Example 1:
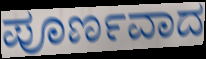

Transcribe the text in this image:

ಪೂರ್ಣವಾದ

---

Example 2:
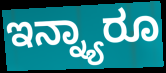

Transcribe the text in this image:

ಇನ್ನ್ಯಾರೂ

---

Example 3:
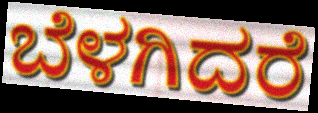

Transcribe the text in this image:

ಬೆಳಗಿದರೆ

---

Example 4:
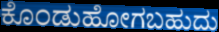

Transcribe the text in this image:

ಕೊಂಡುಹೋಗಬಹುದು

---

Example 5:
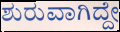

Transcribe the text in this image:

ಶುರುವಾಗಿದ್ದೇ